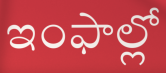
ఇంఫాల్లో